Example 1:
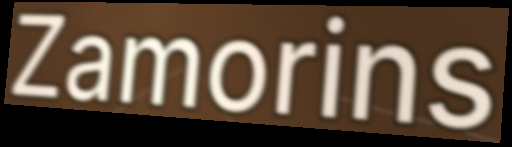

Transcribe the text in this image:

Zamorins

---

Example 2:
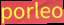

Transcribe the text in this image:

porleo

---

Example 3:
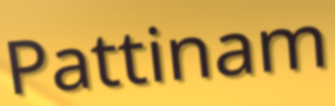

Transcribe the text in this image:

Pattinam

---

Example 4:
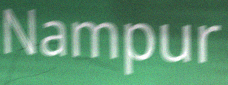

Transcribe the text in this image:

Nampur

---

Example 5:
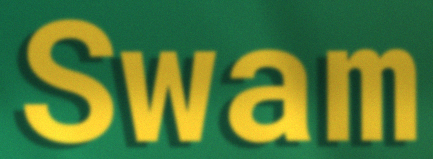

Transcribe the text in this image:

Swam